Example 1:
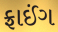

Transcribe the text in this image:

ફ્રાઈંગ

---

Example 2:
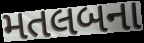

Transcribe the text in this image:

મતલબના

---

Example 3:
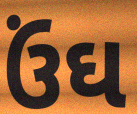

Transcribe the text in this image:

ઉંઘ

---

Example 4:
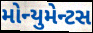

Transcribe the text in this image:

મોન્યુમેન્ટસ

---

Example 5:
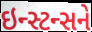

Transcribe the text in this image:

ઇન્સ્ટન્સને